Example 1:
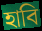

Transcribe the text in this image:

হাবি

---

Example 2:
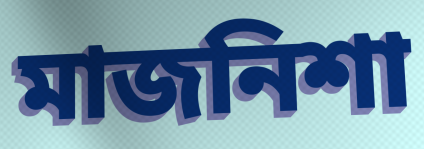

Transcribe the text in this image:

মাজনিশা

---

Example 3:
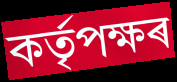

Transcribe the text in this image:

কৰ্তৃপক্ষৰ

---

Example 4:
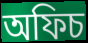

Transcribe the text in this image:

অফিচ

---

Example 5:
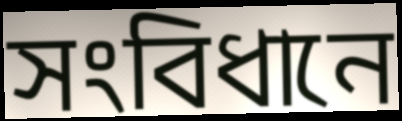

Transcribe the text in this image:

সংবিধানে